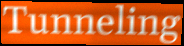
Tunneling